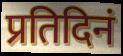
प्रतिदिनं